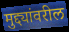
मुद्द्यांवरील